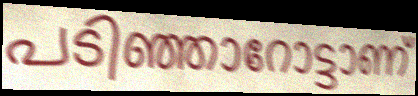
പടിഞ്ഞാറോട്ടാണ്